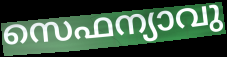
സെഫന്യാവു